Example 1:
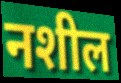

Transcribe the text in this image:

नशील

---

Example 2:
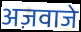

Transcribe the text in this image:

अज़वाजे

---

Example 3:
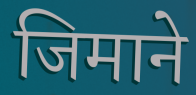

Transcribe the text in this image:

जिमाने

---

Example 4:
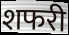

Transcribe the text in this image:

शफरी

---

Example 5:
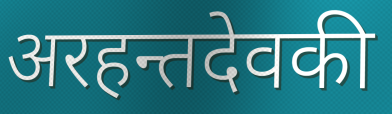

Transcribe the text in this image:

अरहन्तदेवकी